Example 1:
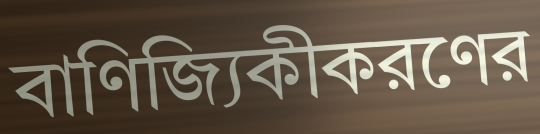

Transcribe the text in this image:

বাণিজ্যিকীকরণের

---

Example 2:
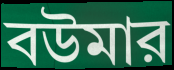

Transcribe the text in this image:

বউমার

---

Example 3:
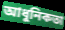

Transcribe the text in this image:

আধুনিকতা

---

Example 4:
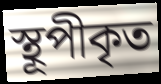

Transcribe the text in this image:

স্থূপীকৃত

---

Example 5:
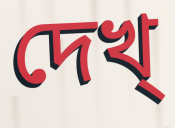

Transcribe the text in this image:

দেখ্